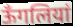
ऊँगलियां